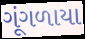
ગૂંગળાયા